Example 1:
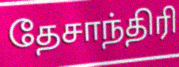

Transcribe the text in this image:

தேசாந்திரி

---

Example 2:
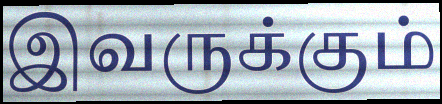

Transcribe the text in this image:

இவருக்கும்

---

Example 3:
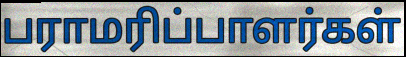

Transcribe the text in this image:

பராமரிப்பாளர்கள்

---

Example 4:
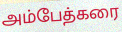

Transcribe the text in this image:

அம்பேத்கரை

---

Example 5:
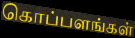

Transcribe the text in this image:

கொப்பளங்கள்